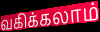
வகிக்கலாம்